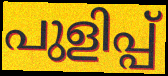
പുളിപ്പ്